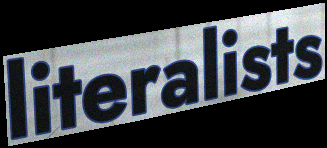
literalists